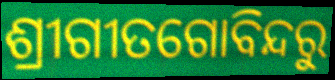
ଶ୍ରୀଗୀତଗୋବିନ୍ଦରୁ